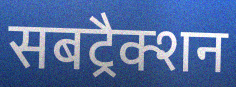
सबट्रैक्शन